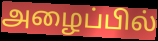
அழைப்பில்